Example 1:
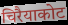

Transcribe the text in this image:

चिरैयाकोट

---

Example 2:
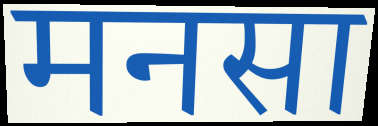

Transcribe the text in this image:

मनसा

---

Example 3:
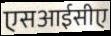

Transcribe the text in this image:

एसआईसीए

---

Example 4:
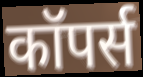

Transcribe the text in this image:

कॉपर्स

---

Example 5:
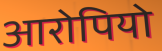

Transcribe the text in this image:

आरोपियो